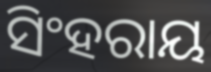
ସିଂହରାୟ